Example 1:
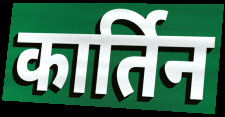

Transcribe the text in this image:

कार्तिन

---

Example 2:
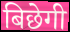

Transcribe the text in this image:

बिछेगी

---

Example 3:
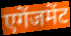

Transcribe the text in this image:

एगेंजमेंट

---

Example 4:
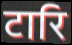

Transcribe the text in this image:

टारि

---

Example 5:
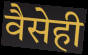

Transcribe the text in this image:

वैसेही